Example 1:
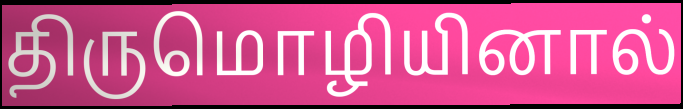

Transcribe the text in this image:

திருமொழியினால்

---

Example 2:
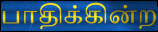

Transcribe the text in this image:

பாதிக்கின்ற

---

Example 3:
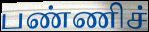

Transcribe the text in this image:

பண்ணிச்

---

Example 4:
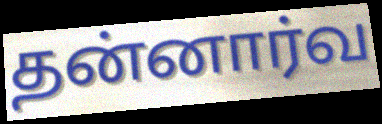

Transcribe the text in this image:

தன்னார்வ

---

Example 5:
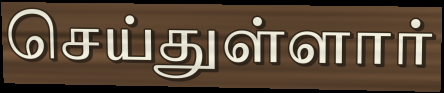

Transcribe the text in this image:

செய்துள்ளார்